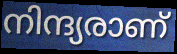
നിന്ദ്യരാണ്